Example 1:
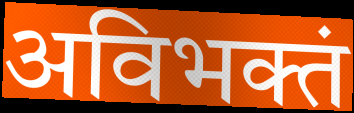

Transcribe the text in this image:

अविभक्तं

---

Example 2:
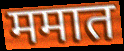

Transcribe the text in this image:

ममात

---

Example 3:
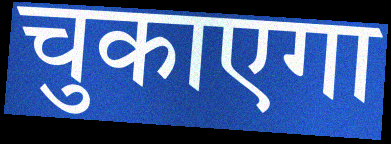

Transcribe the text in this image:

चुकाएगा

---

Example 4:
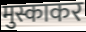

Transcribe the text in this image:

मुस्काकर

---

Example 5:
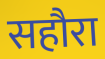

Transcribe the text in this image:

सहौरा